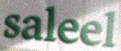
saleel